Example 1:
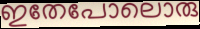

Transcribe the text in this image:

ഇതേപോലൊരു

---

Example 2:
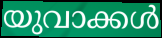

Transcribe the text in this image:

യുവാക്കൾ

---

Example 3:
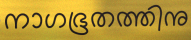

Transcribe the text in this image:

നാഗഭൂതത്തിനു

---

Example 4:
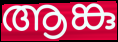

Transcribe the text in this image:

ആങ്കു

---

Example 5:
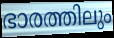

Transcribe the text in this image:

ഭാരത്തിലും